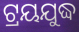
ଟ୍ରୟଯୁଦ୍ଧ